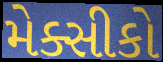
મેક્સીકો